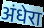
अंधेरा